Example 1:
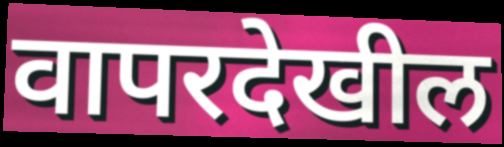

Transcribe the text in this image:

वापरदेखील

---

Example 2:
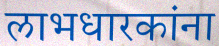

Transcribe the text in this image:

लाभधारकांना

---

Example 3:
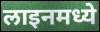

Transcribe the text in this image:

लाइनमध्ये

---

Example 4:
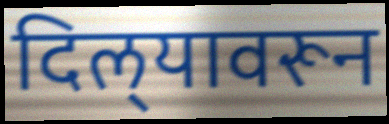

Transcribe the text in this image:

दिल्यावरून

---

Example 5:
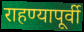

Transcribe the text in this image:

राहण्यापूर्वी